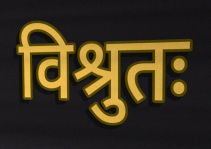
विश्रुतः